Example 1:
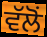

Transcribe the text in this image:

ਵੱਲੋਂ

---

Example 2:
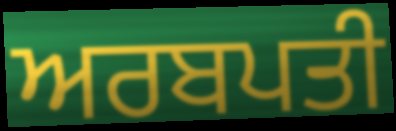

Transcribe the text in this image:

ਅਰਬਪਤੀ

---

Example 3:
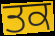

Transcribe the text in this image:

ਤਕ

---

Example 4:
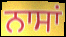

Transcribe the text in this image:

ਨਾਸਾਂ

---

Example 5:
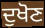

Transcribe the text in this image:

ਦੁਖੋਣ